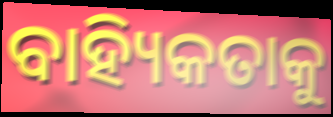
ବାହ୍ୟିକତାକୁ